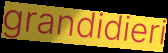
grandidieri